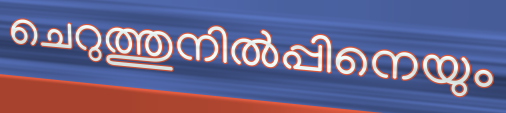
ചെറുത്തുനിൽപ്പിനെയും